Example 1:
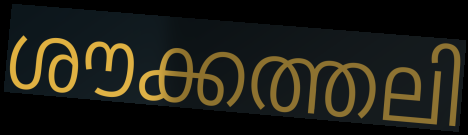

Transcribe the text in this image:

ശൗക്കത്തലി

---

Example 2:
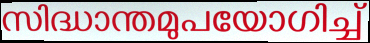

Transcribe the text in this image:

സിദ്ധാന്തമുപയോഗിച്ച്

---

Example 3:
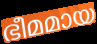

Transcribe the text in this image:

ഭീമമായ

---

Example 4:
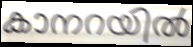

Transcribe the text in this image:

കാനറയിൽ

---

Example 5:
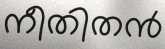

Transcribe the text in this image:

നീതിതൻ